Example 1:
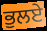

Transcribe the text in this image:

ਭੁਲਏ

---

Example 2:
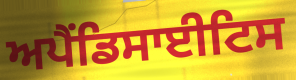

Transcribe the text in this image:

ਅਪੈਂਡਿਸਾਈਟਿਸ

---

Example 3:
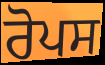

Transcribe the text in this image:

ਰੋਪਸ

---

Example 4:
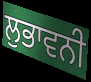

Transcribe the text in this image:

ਲੁਭਾਵਨੀ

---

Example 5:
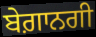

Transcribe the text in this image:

ਬੇਗ਼ਾਨਗੀ